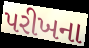
પરીખના